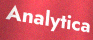
Analytica